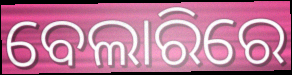
ବେଲାରିରେ